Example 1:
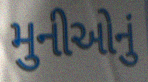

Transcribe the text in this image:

મુનીઓનું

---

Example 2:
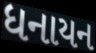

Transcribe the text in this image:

ધનાયન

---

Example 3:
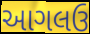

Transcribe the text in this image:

આગલઉ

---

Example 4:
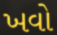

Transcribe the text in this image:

ખવો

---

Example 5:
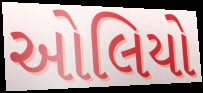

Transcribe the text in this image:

ઓલિયો